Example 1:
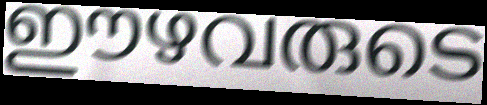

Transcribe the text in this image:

ഈഴവരുടെ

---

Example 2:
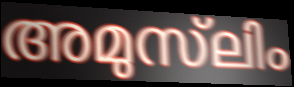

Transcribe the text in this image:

അമുസ്‌ലിം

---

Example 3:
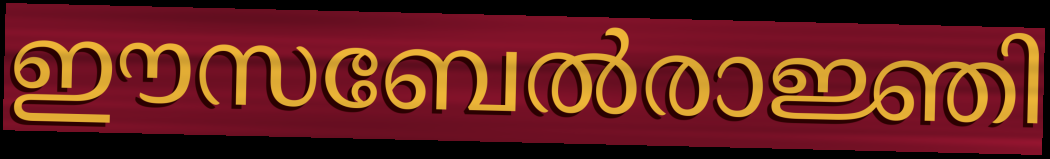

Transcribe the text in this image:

ഈസബേൽരാജ്ഞി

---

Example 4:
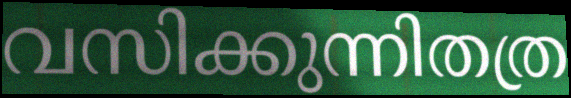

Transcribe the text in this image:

വസിക്കുന്നിതത്ര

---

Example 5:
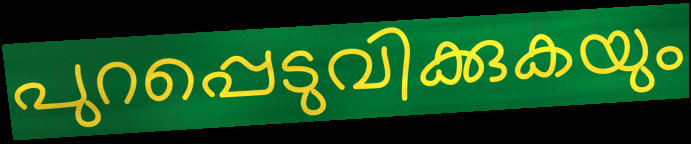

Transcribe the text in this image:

പുറപ്പെടുവിക്കുകയും